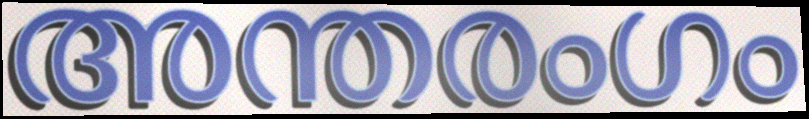
അന്തരംഗം